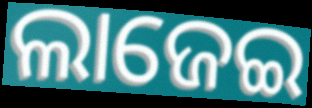
ଲାଜେଇ